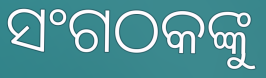
ସଂଗଠକଙ୍କୁ